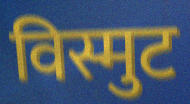
विस्मुट